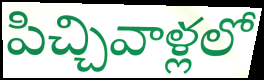
పిచ్చివాళ్లలో